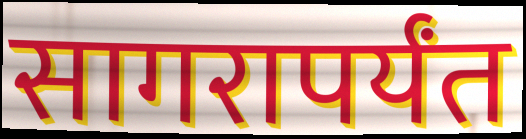
सागरापर्यंत